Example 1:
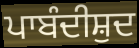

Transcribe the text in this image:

ਪਾਬੰਦੀਸ਼ੁਦ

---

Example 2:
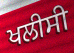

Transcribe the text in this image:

ਖਲੀਸੀ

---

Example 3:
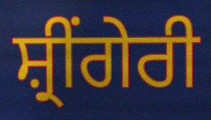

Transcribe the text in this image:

ਸ਼੍ਰੀਂਗੇਰੀ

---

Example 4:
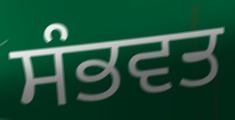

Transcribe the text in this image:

ਸੰਭਵਤ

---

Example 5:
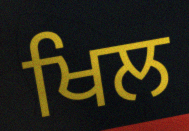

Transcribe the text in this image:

ਖਿਲ